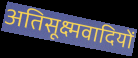
अतिसूक्ष्मवादियों